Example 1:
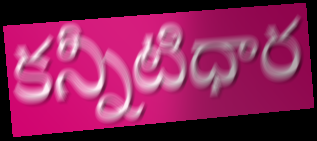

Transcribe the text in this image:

కన్నీటిధార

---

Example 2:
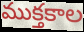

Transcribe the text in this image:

ముక్తకాల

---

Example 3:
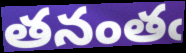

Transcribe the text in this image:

తనంతఁ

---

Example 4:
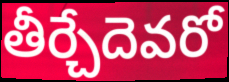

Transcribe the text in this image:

తీర్చేదెవరో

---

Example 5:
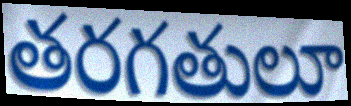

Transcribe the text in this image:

తరగతులూ